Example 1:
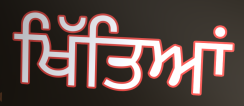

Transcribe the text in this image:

ਖਿੱਤਿਆਂ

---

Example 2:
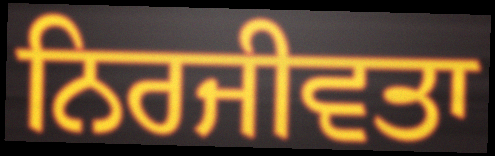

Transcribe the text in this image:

ਨਿਰਜੀਵਤਾ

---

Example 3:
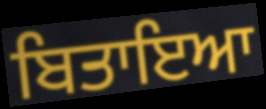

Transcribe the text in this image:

ਬਿਤਾਇਆ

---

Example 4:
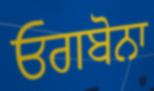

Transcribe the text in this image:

ਓਗਬੋਨਾ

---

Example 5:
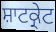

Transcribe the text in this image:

ਸ਼ਾਟਕ੍ਰੇਟ